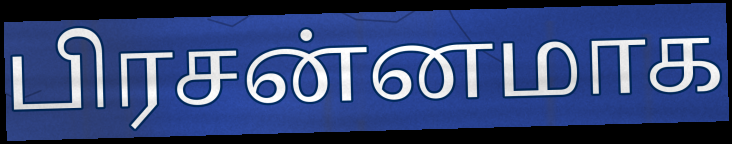
பிரசன்னமாக